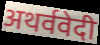
अथर्ववेदी